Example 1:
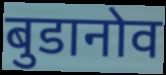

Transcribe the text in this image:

बुडानोव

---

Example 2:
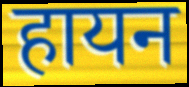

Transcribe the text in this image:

हायन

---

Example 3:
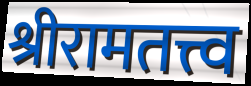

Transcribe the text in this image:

श्रीरामतत्त्व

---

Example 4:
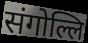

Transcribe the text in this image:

संगोल्लि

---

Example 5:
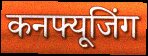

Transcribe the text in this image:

कनफ्यूजिंग